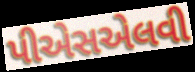
પીએસએલવી